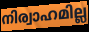
നിര്വാഹമില്ല